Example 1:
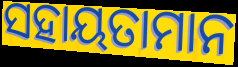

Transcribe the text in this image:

ସହାୟତାମାନ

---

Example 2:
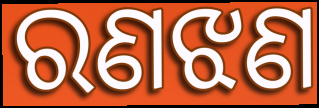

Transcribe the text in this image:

ରଣଝଣ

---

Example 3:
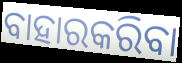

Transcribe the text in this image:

ବାହାରକରିବା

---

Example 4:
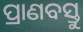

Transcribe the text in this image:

ପ୍ରାଣବସ୍ତୁ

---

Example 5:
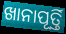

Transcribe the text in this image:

ଖାନାପୂର୍ତ୍ତି